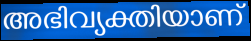
അഭിവ്യക്തിയാണ്